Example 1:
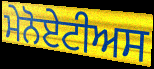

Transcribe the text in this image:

ਮੇਨੋਏਟੀਅਸ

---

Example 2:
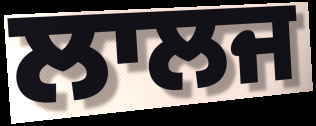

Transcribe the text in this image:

ਲਾਲਜ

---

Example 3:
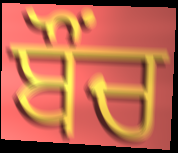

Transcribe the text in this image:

ਬੌਂਚ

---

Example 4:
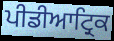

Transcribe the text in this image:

ਪੀਡੀਆਟ੍ਰਿਕ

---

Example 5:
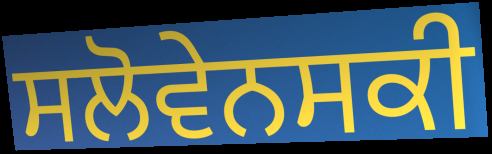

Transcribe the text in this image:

ਸਲੋਵੇਨਸਕੀ